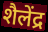
शैलेंद्र